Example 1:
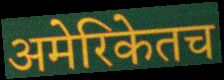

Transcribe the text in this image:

अमेरिकेतच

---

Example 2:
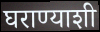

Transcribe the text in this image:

घराण्याशी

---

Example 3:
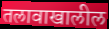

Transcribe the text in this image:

तलावाखालील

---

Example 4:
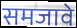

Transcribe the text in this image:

समजावे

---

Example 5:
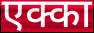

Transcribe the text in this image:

एक्का